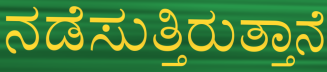
ನಡೆಸುತ್ತಿರುತ್ತಾನೆ